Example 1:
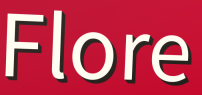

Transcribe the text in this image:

Flore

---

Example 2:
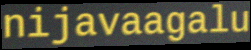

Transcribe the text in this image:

nijavaagalu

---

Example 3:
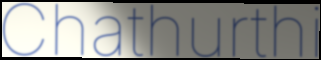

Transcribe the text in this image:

Chathurthi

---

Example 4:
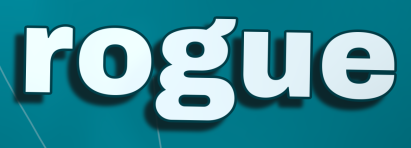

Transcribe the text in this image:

rogue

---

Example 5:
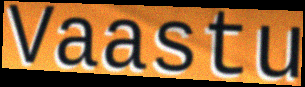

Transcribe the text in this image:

Vaastu